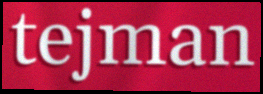
tejman